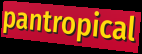
pantropical